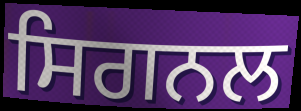
ਸਿਗਨਲ